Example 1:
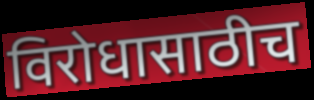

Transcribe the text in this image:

विरोधासाठीच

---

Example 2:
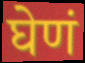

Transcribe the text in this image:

घेणं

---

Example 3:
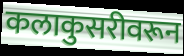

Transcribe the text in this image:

कलाकुसरीवरून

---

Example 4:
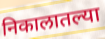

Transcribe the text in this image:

निकालातल्या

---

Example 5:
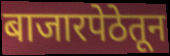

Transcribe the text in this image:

बाजारपेठेतून